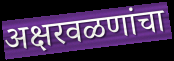
अक्षरवळणांचा